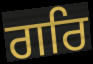
ਗਰਿ